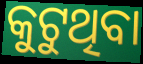
କୁଟୁଥିବା